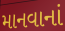
માનવાનાં